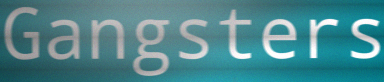
Gangsters